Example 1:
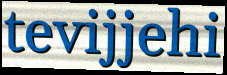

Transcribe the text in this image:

tevijjehi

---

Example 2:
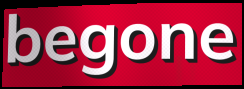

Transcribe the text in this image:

begone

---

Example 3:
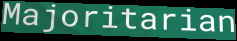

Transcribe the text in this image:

Majoritarian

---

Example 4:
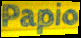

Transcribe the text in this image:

Papio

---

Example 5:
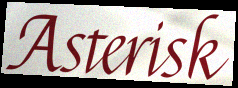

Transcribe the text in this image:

Asterisk